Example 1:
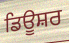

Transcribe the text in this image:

ਡਿਊਸ਼ਰ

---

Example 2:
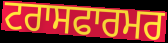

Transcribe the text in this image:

ਟਰਾਸਫਾਰਮਰ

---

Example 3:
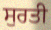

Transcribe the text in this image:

ਸੁਰਤੀ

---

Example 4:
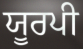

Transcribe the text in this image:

ਯੂਰਪੀ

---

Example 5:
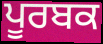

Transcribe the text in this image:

ਪੂਰਬਕ